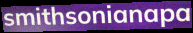
smithsonianapa